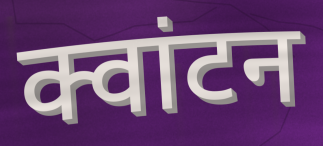
क्वांटन